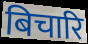
बिचारि